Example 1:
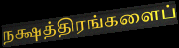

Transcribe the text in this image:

நக்ஷத்திரங்களைப்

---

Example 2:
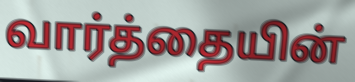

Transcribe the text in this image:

வார்த்தையின்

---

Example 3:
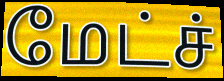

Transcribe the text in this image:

மேட்ச்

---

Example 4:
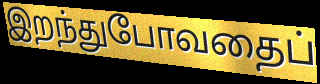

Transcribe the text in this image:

இறந்துபோவதைப்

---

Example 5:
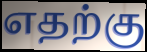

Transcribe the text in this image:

எதற்கு